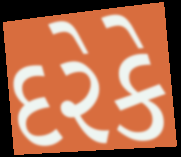
દરેકે